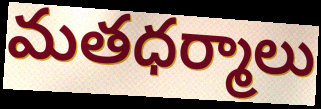
మతధర్మాలు